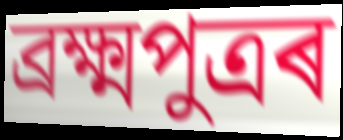
ব্ৰক্ষ্মপুত্ৰৰ